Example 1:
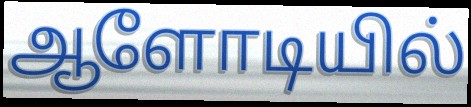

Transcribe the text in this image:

ஆளோடியில்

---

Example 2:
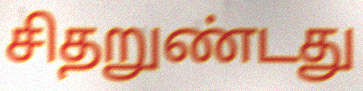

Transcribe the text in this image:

சிதறுண்டது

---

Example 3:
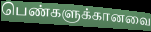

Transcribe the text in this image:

பெண்களுக்கானவை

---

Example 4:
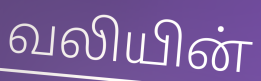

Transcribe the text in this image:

வலியின்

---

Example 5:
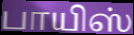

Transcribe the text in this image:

பாயிஸ்